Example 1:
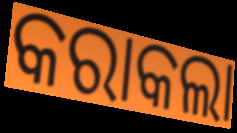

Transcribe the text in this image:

କରାକଲା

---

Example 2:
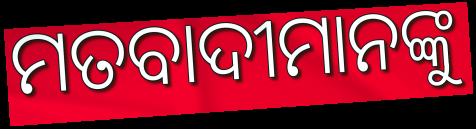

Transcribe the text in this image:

ମତବାଦୀମାନଙ୍କୁ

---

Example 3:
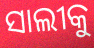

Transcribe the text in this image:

ସାଲୀକୁ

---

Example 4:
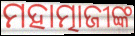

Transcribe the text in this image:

ମହାତ୍ମାଜୀଙ୍କ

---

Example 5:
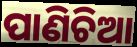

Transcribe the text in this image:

ପାଣିଚିଆ